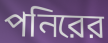
পনিরের